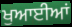
ਖੁਆਈਆਂ